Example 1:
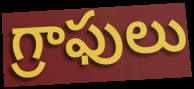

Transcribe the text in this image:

గ్రాఫులు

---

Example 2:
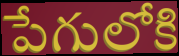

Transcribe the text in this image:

పేగులోకి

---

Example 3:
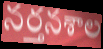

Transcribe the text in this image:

నర్తనశాల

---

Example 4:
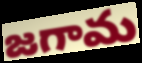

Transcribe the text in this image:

జగామ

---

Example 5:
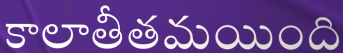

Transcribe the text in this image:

కాలాతీతమయింది